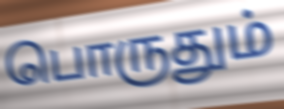
பொருதும்